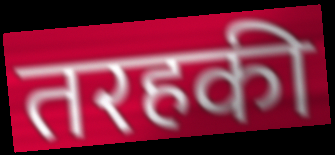
तरहकी